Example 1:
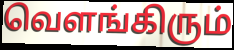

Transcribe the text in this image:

வெளங்கிரும்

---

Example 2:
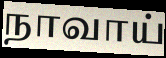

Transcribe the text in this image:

நாவாய்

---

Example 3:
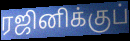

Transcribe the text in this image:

ரஜினிக்குப்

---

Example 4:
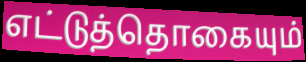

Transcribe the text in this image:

எட்டுத்தொகையும்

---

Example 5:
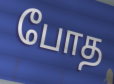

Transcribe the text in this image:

போத